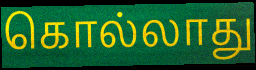
கொல்லாது